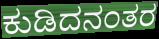
ಕುಡಿದನಂತರ